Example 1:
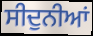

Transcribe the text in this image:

ਸੀਦੁਨੀਆਂ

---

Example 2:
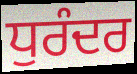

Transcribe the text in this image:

ਧੁਰੰਦਰ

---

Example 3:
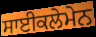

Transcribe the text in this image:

ਸਾਈਕਲੇਮੇਨ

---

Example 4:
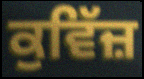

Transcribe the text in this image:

ਕੁਵਿੱਜ਼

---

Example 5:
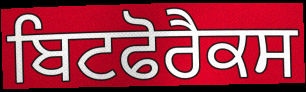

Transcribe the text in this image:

ਬਿਟਫੋਰੈਕਸ